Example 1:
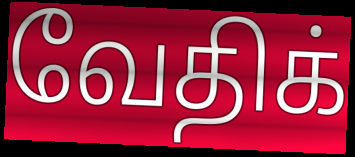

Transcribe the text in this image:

வேதிக்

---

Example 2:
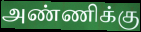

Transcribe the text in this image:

அண்ணிக்கு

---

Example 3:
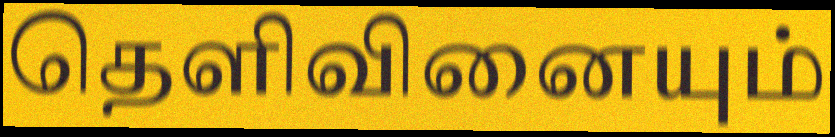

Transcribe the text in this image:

தெளிவினையும்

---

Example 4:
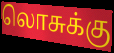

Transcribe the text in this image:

லொசுக்கு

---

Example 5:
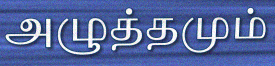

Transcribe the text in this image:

அழுத்தமும்